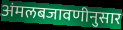
अंमलबजावणीनुसार